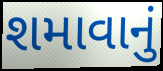
શમાવાનું